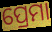
ପ୍ରେମା